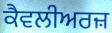
ਕੈਵਲੀਅਰਜ਼